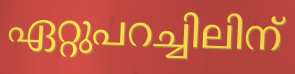
ഏറ്റുപറച്ചിലിന്